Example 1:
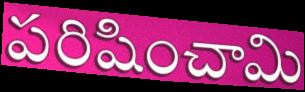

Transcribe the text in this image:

పరిషించామి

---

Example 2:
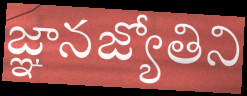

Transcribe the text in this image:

జ్ఞానజ్యోతిని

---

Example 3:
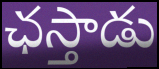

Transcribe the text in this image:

ఛస్తాడు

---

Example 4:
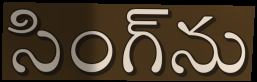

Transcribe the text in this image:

సింగ్‌ను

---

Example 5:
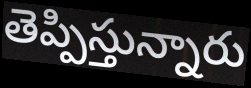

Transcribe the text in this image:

తెప్పిస్తున్నారు